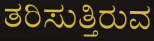
ತರಿಸುತ್ತಿರುವ